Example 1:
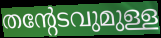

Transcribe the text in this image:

തന്റേടവുമുള്ള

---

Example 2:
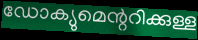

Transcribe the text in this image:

ഡോക്യുമെന്ററിക്കുള്ള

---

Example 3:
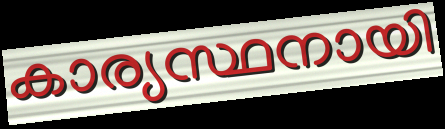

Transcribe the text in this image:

കാര്യസ്ഥനായി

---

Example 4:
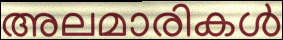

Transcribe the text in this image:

അലമാരികൾ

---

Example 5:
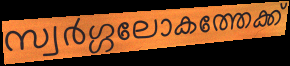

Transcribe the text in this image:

സ്വർഗ്ഗലോകത്തേക്ക്